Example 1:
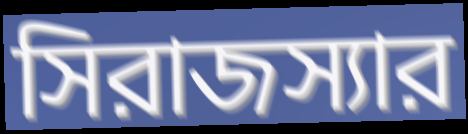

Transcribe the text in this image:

সিরাজস্যার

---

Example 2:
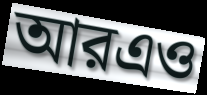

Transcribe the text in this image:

আরএও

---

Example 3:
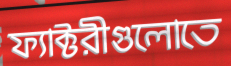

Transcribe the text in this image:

ফ্যাক্টরীগুলোতে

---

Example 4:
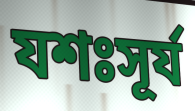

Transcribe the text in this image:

যশঃসূর্য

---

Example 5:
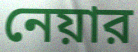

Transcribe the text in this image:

নেয়ার